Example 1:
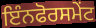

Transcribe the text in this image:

ਇੰਨਫੋਰਸਮੇਂਟ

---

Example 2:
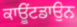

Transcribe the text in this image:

ਕਾਊਂਟਡਾਉਨ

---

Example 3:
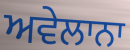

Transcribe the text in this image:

ਅਵੇਲਾਨਾ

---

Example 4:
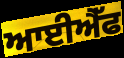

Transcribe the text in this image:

ਆਈਐੱਫ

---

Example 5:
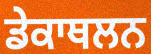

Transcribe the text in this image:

ਡੇਕਾਥਲਨ